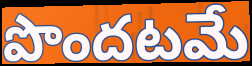
పొందటమే